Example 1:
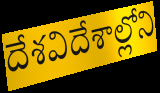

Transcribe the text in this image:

దేశవిదేశాల్లోని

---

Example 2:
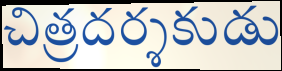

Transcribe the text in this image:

చిత్రదర్శకుడు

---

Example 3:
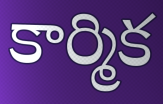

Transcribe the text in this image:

కార్మిక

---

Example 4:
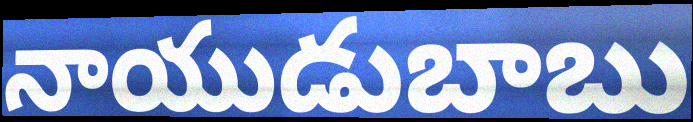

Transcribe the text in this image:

నాయుడుబాబు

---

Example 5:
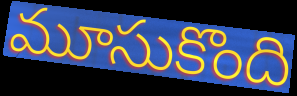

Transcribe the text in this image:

మూసుకొంది